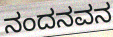
ನಂದನವನ